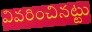
వివరించినట్టు